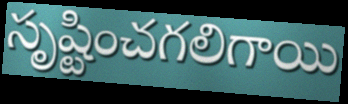
సృష్టించగలిగాయి